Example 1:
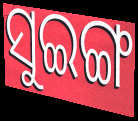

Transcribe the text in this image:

ସୁଇଙ୍ଗ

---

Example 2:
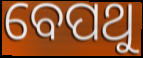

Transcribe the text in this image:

ବେପଥୁ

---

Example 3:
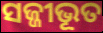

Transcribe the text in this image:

ସଜ୍ଜୀଭୂତ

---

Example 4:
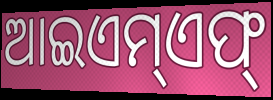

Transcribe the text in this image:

ଆଇଏମ୍ଏଫ୍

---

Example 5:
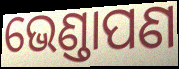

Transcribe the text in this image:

ଭେଣ୍ଡାପଣ